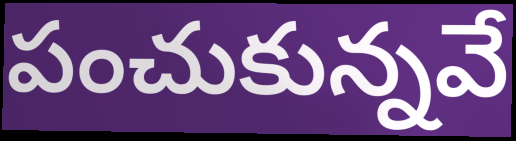
పంచుకున్నవే